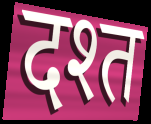
दश्त